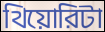
থিয়োরিটা